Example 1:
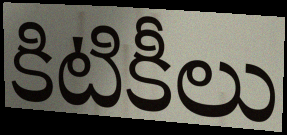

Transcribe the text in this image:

కిటికీలు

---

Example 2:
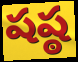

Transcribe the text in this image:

షష్ఠ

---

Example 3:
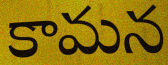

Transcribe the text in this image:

కామన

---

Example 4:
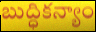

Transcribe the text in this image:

బుద్ధికన్యాం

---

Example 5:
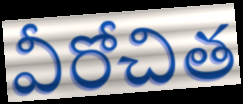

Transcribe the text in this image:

వీరోచిత